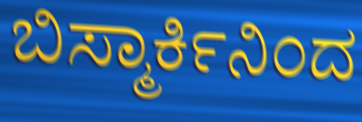
ಬಿಸ್ಮಾರ್ಕಿನಿಂದ